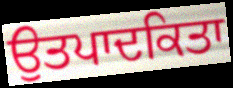
ਉਤਪਾਦਕਿਤਾ